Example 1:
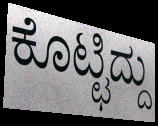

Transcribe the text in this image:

ಕೊಟ್ಟಿದ್ದು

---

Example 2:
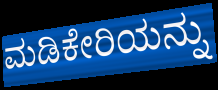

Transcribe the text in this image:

ಮಡಿಕೇರಿಯನ್ನು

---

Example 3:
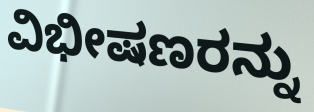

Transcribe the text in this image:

ವಿಭೀಷಣರನ್ನು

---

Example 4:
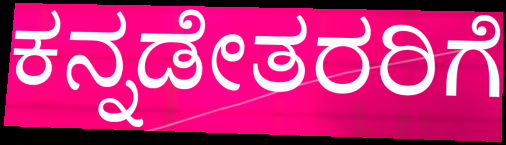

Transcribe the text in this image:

ಕನ್ನಡೇತರರಿಗೆ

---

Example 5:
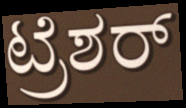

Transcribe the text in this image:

ಟ್ರೆಶರ್